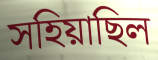
সহিয়াছিল